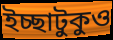
ইচ্ছাটুকুও